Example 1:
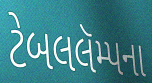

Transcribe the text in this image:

ટેબલલૅમ્પના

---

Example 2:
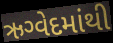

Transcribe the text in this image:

ઋગ્વેદમાંથી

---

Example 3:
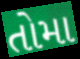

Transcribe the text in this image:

તોમા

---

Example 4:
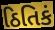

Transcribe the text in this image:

ઠિતિકં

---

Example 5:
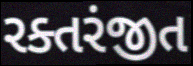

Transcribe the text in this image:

રક્તરંજીત